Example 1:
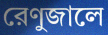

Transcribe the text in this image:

রেণুজালে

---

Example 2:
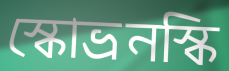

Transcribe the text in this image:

স্কোভ্রনস্কি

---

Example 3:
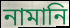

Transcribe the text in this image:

নামানি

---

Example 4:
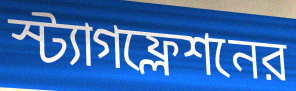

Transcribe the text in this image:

স্ট্যাগফ্লেশনের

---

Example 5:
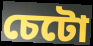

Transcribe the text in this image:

চেটো